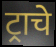
ट्राचे